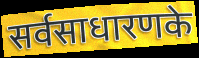
सर्वसाधारणके